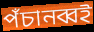
পঁচানব্বই